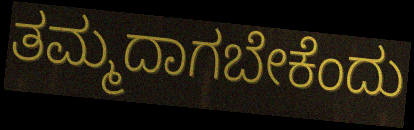
ತಮ್ಮದಾಗಬೇಕೆಂದು